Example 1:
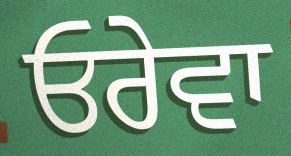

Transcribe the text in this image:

ਓਰੇਵਾ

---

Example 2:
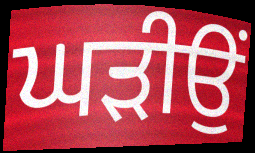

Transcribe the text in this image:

ਘੜੀਉਂ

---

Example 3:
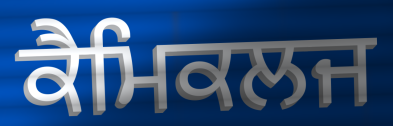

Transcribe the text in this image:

ਕੈਮਿਕਲਜ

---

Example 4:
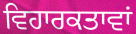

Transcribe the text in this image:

ਵਿਹਾਰਕਤਾਵਾਂ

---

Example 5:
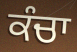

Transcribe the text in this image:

ਕੰਚਾ